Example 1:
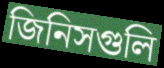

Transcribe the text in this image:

জিনিসগুলি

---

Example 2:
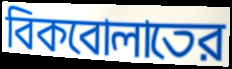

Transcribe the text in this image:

বিকবোলাতের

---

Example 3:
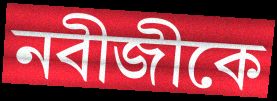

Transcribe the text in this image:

নবীজীকে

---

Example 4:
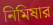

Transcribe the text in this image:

নিমিষার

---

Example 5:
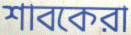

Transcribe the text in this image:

শাবকেরা